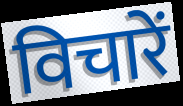
विचारें